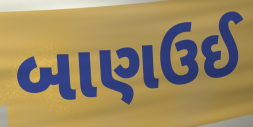
બાણઉઈ